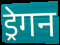
ड्रेगन